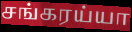
சங்கரய்யா